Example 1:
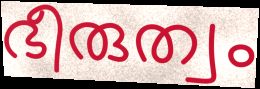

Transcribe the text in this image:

ഭീരുത്വം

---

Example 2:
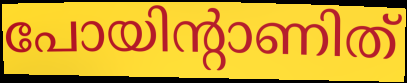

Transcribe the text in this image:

പോയിന്റാണിത്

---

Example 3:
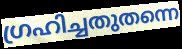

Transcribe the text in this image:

ഗ്രഹിച്ചതുതന്നെ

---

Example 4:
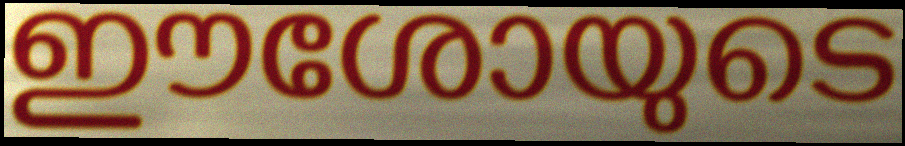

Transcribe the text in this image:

ഈശോയുടെ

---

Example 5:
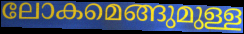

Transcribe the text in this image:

ലോകമെങ്ങുമുള്ള